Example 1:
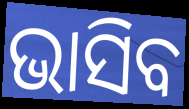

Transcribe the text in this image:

ଭାସିବ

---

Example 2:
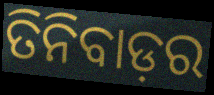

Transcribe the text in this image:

ତିନିବାଡ଼ର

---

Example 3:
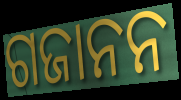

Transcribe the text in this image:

ଗଜାନନ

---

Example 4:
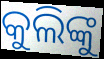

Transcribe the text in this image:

କୁଲିଙ୍କୁ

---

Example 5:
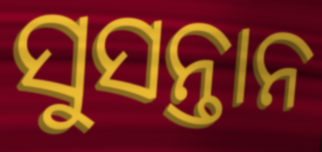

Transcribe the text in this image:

ସୁସନ୍ତାନ